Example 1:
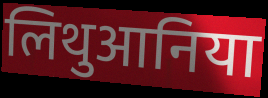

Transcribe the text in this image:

लिथुआनिया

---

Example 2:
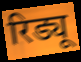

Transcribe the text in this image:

रिड्यू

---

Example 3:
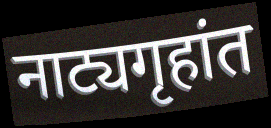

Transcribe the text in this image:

नाट्यगृहांत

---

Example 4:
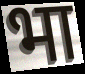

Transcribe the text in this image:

भा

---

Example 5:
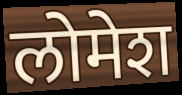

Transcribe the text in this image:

लोमेश